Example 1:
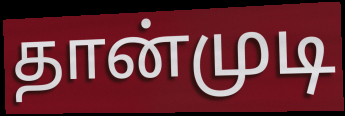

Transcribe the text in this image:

தான்முடி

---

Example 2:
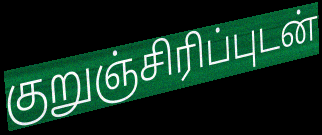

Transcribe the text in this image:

குறுஞ்சிரிப்புடன்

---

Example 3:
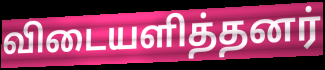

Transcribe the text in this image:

விடையளித்தனர்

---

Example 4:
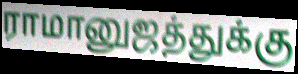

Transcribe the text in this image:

ராமானுஜத்துக்கு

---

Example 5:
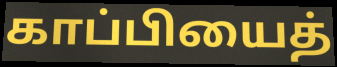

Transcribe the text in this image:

காப்பியைத்